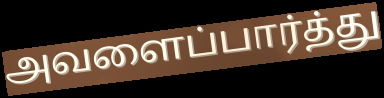
அவளைப்பார்த்து